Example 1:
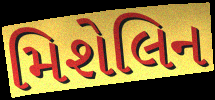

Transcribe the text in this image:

મિશેલિન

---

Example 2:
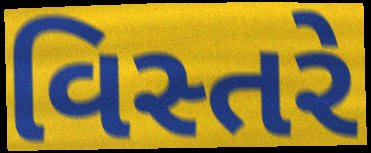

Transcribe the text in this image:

વિસ્તરે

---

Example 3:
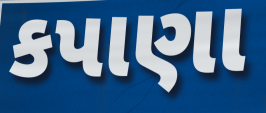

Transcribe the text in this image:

કપાણા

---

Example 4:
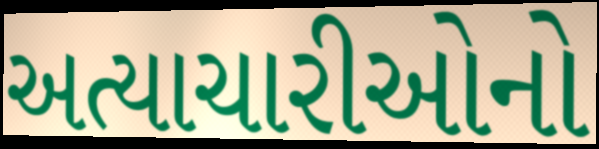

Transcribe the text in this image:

અત્યાચારીઓનો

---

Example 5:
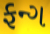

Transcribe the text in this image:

ફન્ગ